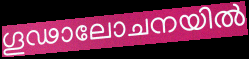
ഗൂഢാലോചനയിൽ